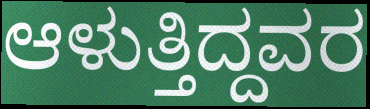
ಆಳುತ್ತಿದ್ದವರ